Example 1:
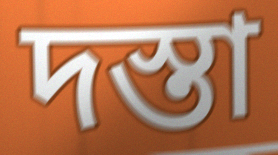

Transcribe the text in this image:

দস্তা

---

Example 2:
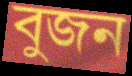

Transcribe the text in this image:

বুজন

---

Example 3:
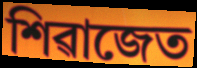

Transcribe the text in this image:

শিৱাজেত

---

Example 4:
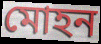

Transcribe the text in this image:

মোহন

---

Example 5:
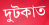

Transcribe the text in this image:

দুটকাত